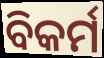
ବିକର୍ମ